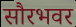
सौरभवर